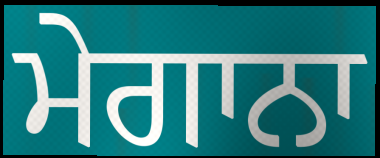
ਮੇਗਾਨਾ